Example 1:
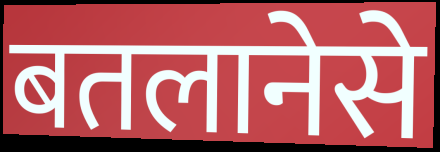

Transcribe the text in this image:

बतलानेसे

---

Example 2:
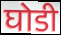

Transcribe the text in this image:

घोडी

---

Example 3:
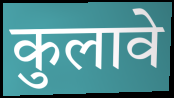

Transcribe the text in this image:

कुलावे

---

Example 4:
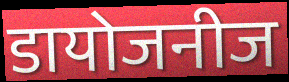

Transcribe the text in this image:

डायोजनीज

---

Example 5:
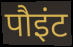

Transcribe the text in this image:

पौइंट